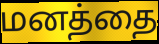
மனத்தை